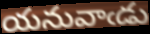
యనువాఁడు